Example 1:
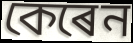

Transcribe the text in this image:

কেৰেন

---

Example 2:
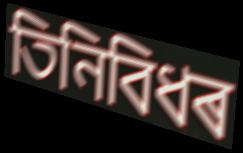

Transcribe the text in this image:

তিনিবিধৰ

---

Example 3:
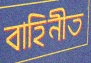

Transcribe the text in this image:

বাহিনীত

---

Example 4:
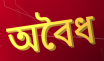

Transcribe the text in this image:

অবৈধ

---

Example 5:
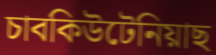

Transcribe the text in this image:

চাবকিউটেনিয়াছ